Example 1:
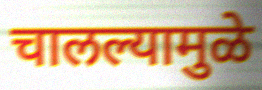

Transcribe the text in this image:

चालल्यामुळे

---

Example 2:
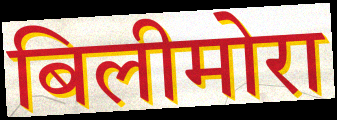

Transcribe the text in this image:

बिलीमोरा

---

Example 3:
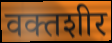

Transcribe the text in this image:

वक्तशीर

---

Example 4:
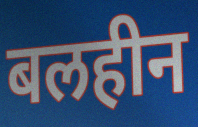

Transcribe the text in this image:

बलहीन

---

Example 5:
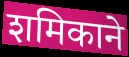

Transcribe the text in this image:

शमिकाने